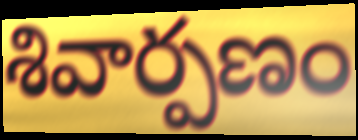
శివార్పణం